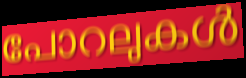
പോറലുകൾ